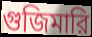
গুজিমারি